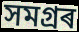
সমগ্ৰৰ